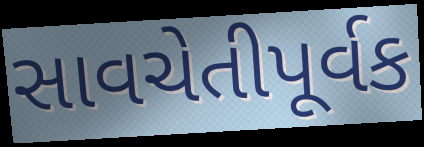
સાવચેતીપૂર્વક